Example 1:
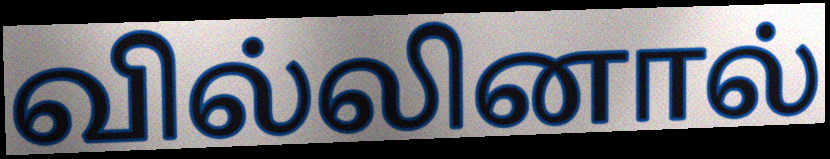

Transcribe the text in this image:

வில்லினால்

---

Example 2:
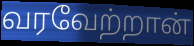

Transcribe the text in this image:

வரவேற்றான்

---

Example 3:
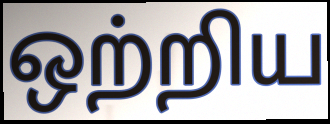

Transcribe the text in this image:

ஒற்றிய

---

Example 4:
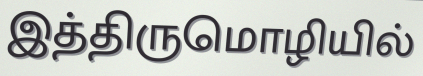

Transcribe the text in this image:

இத்திருமொழியில்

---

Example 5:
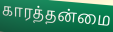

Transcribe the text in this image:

காரத்தன்மை